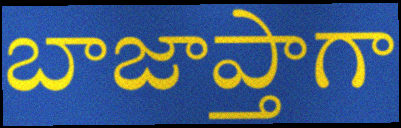
బాజాప్తాగా